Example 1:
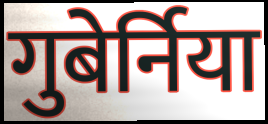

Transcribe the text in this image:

गुबेर्निया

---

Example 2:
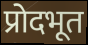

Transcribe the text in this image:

प्रोदभूत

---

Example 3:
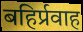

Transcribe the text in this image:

बहिर्प्रवाह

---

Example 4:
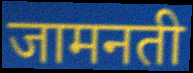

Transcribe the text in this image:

जामनती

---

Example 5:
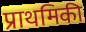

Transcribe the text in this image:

प्राथमिकी